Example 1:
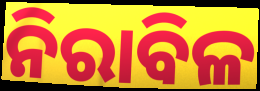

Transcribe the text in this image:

ନିରାବିଳ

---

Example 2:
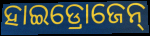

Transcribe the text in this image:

ହାଇଡ୍ରୋଜେନ୍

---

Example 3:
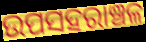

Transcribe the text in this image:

ଉପସହରାଞ୍ଚଳ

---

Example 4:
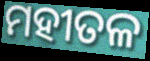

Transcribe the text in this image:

ମହୀତଳ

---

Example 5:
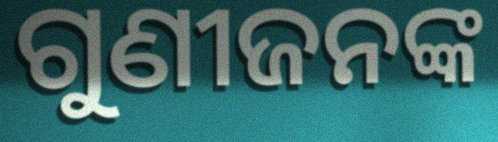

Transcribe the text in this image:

ଗୁଣୀଜନଙ୍କ